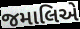
જમાલિએ